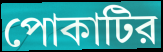
পোকাটির